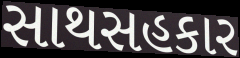
સાથસહકાર